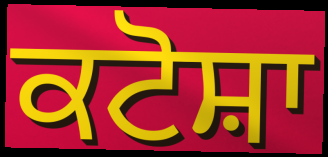
ਕਟੋਸ਼ਾ